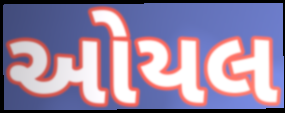
ઓયલ